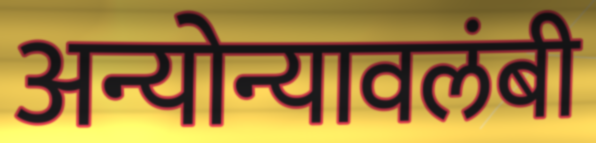
अन्योन्यावलंबी